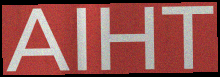
AIHT